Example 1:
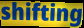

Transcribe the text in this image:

shifting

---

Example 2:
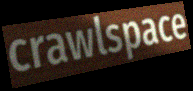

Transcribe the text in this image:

crawlspace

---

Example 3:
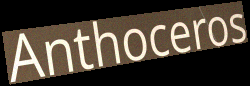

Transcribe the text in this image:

Anthoceros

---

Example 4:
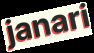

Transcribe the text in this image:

janari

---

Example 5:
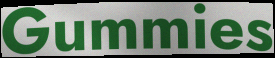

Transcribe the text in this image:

Gummies